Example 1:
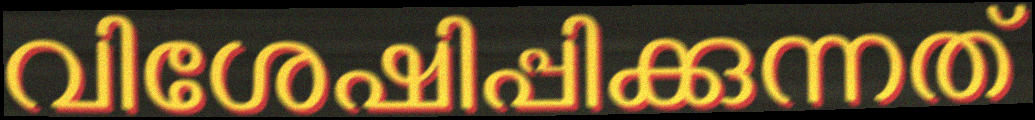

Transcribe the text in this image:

വിശേഷിപ്പിക്കുന്നത്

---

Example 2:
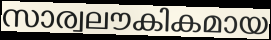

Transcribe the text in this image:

സാര്വലൗകികമായ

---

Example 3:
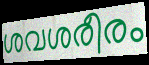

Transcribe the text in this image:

ശവശരീരം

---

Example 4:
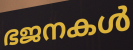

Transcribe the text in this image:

ഭജനകൾ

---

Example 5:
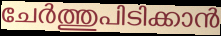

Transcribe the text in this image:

ചേർത്തുപിടിക്കാൻ